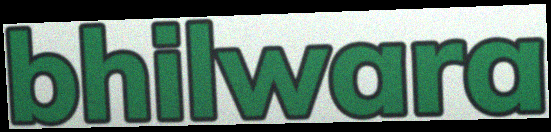
bhilwara